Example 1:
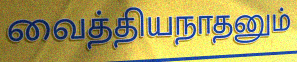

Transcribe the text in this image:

வைத்தியநாதனும்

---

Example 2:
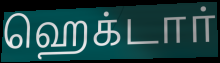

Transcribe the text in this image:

ஹெக்டார்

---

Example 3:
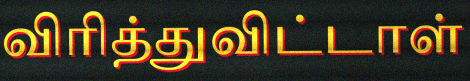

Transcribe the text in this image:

விரித்துவிட்டாள்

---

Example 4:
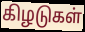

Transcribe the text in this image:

கிழடுகள்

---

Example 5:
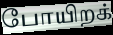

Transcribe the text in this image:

போயிறக்